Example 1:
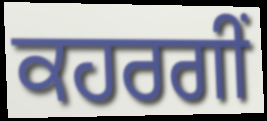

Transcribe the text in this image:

ਕਹਰਗੀਂ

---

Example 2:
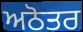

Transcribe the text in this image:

ਅਠੋਤਰ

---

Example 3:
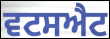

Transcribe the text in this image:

ਵਟਸਐਟ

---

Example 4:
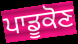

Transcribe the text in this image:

ਪਾਡੂਕੋਣ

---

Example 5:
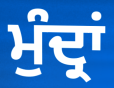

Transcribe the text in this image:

ਮੁੰਦ੍ਰਾਂ